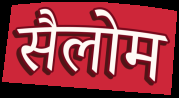
सैलोम